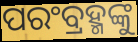
ପରଂବ୍ରହ୍ମଙ୍କୁ